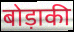
बोड़ाकी